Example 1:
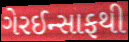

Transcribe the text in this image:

ગેરઈન્સાફથી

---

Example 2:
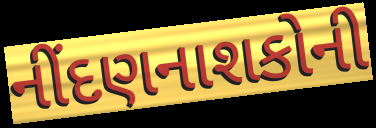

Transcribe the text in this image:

નીંદણનાશકોની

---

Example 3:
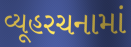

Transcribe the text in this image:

વ્યૂહરચનામાં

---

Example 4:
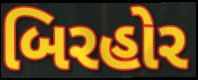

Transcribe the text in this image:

બિરહોર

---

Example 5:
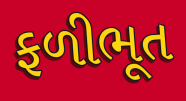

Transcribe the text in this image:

ફળીભૂત